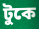
টুকে